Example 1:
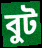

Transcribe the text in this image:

বুট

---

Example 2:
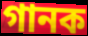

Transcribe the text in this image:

গানক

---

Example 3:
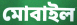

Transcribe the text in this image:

মোবাইল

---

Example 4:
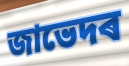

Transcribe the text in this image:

জাভেদৰ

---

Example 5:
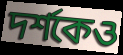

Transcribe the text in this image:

দৰ্শকেও